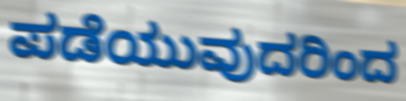
ಪಡೆಯುವುದರಿಂದ